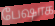
பேஷாக